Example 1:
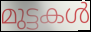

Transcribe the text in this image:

മുട്ടകൾ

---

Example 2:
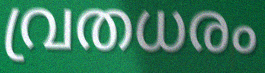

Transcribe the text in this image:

വ്രതധരം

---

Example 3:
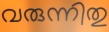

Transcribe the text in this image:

വരുന്നിതു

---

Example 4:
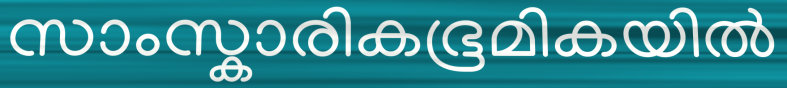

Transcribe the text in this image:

സാംസ്കാരികഭൂമികയിൽ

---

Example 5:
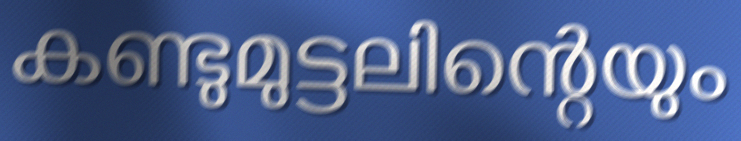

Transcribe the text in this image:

കണ്ടുമുട്ടലിന്റെയും